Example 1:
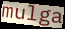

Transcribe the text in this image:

mulga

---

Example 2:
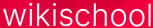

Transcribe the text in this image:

wikischool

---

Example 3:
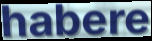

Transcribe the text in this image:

habere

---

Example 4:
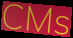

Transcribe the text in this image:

CMs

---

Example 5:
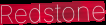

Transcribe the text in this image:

Redstone